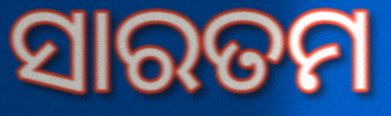
ସାରତମ